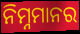
ନିମ୍ନମାନର